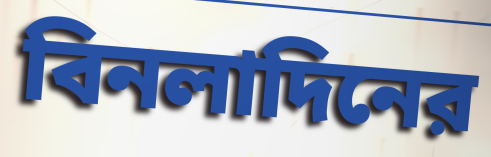
বিনলাদিনের